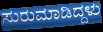
ಸುರುಮಾಡಿದ್ದಳು